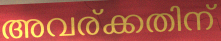
അവര്ക്കതിന്